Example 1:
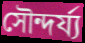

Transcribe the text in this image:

সৌন্দৰ্য্য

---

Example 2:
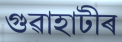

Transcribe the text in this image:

গুৱাহাটীৰ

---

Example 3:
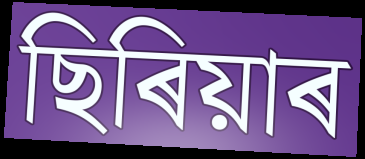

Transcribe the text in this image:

ছিৰিয়াৰ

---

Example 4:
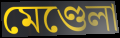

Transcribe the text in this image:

মেণ্ডেলা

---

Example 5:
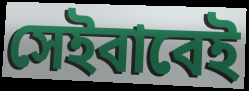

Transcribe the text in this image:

সেইবাবেই